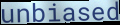
unbiased